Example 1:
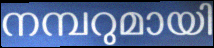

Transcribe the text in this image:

നമ്പറുമായി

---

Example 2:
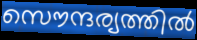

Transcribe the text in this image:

സൌന്ദര്യത്തിൽ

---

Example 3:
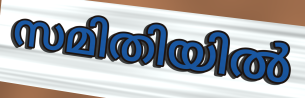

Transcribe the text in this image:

സമിതിയിൽ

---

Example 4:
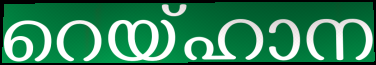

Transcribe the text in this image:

റെയ്ഹാന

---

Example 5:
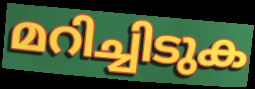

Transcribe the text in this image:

മറിച്ചിടുക